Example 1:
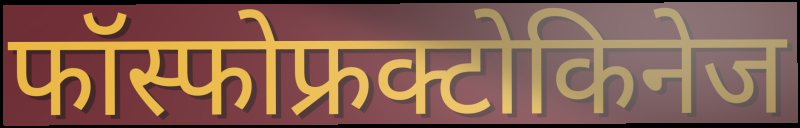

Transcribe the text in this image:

फॉस्फोफ्रक्टोकिनेज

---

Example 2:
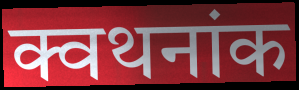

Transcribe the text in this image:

क्वथनांक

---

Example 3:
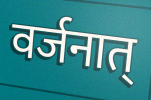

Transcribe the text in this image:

वर्जनात्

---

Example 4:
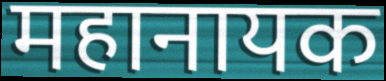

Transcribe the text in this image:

महानायक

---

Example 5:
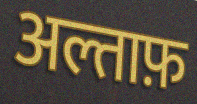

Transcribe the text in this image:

अल्ताफ़